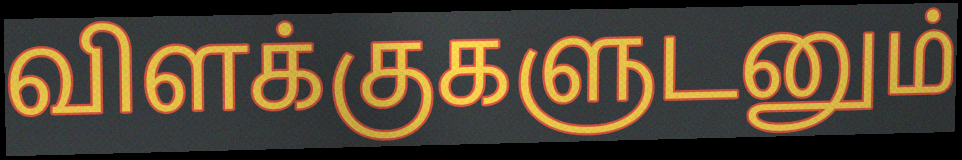
விளக்குகளுடனும்